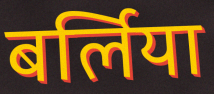
बर्लिया